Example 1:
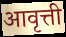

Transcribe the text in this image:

आवृत्ती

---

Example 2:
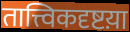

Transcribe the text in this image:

तात्त्विकदृष्टय़ा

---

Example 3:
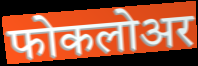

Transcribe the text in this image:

फोकलोअर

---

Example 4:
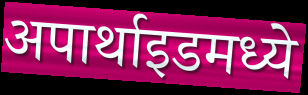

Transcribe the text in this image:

अपार्थाइडमध्ये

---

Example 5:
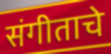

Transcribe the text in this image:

संगीताचे